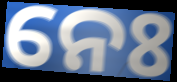
ନେଃ